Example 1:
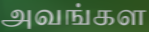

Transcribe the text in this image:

அவங்கள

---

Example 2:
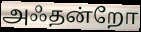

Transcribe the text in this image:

அஃதன்றோ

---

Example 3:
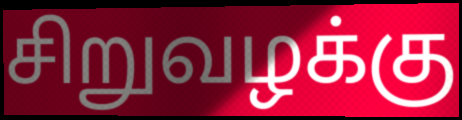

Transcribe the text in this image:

சிறுவழக்கு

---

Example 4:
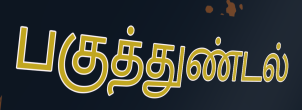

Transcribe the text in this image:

பகுத்துண்டல்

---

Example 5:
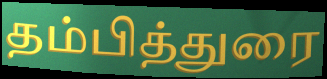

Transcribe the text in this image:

தம்பித்துரை